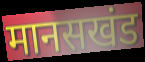
मानसखंड